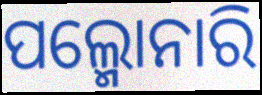
ପଲ୍ମୋନାରି